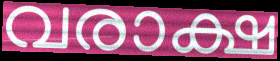
വരാക്ഷ